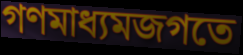
গণমাধ্যমজগতে